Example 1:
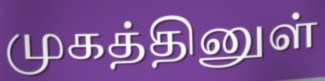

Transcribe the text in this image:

முகத்தினுள்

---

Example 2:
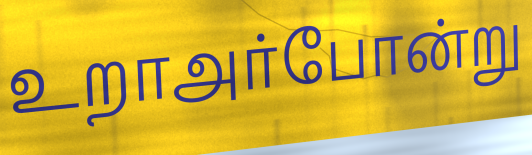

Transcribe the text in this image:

உறாஅர்போன்று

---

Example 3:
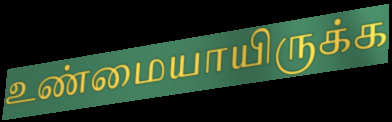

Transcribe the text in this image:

உண்மையாயிருக்க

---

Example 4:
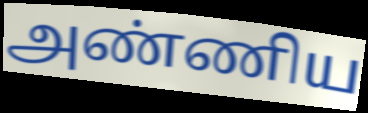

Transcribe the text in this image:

அண்ணிய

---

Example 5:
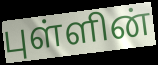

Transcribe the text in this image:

புள்ளின்